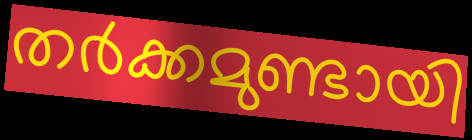
തർക്കമുണ്ടായി